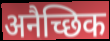
अनैच्छिक